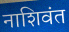
नाशिवंत